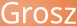
Grosz